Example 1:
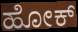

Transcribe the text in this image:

ಹೋಕ್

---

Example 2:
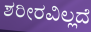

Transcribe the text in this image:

ಶರೀರವಿಲ್ಲದೆ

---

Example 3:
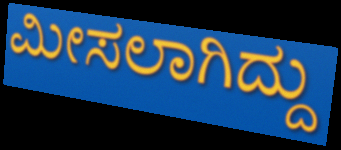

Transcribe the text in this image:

ಮೀಸಲಾಗಿದ್ದು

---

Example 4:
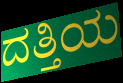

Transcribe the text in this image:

ದತ್ತಿಯ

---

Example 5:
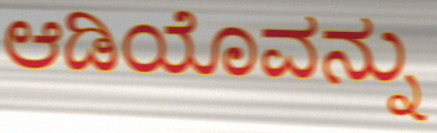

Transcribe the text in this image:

ಆಡಿಯೊವನ್ನು